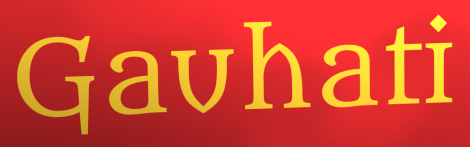
Gauhati